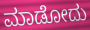
ಮಾಡೋದು